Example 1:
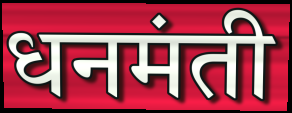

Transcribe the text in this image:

धनमंती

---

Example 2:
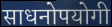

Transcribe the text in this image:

साधनोपयोगी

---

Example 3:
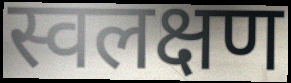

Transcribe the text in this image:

स्वलक्षण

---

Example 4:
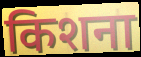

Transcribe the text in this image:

किशना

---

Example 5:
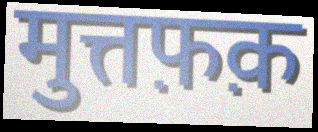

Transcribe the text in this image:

मुत्तफ़क़